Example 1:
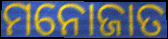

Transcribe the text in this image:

ମନୋଜାତ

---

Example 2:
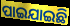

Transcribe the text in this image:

ପାଇଯାଇଛି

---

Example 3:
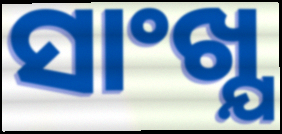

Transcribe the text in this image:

ସାଂଖ୍ଯ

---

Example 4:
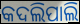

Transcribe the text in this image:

କଦଲିପାଲି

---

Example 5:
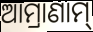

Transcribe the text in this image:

ଆମ୍ରାଣାମ୍